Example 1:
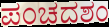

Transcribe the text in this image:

ಪಂಚದಶಂ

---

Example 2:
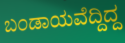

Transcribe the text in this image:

ಬಂಡಾಯವೆದ್ದಿದ್ದ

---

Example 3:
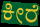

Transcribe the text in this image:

ಕೀರೆ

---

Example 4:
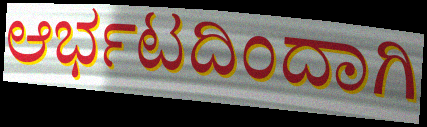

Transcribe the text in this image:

ಆರ್ಭಟದಿಂದಾಗಿ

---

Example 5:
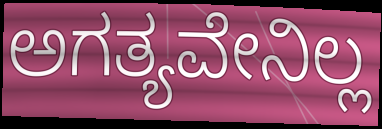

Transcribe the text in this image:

ಅಗತ್ಯವೇನಿಲ್ಲ